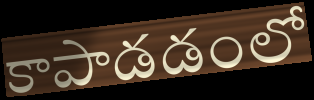
కాపాడడంలో